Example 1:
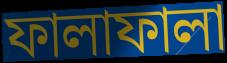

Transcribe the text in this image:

ফালাফালা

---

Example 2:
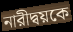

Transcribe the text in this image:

নারীদ্বয়কে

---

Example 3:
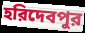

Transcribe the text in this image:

হরিদেবপুর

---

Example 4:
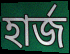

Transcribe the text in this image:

হার্জ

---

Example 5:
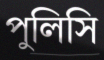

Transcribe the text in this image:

পুলিসি